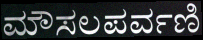
ಮೌಸಲಪರ್ವಣಿ